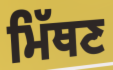
ਮਿੱਥਣ